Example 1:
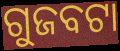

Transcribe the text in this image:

ଗୁଜବଟା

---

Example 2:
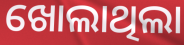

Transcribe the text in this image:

ଖୋଲାଥିଲା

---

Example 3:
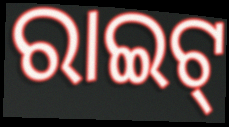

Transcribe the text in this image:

ରାଇଟ୍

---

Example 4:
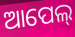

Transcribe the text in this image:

ଆପେଲ୍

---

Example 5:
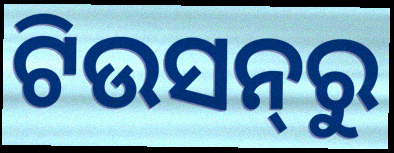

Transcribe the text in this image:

ଟିଉସନ୍‌ରୁ